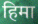
हिमा